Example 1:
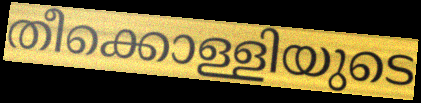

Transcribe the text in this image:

തീക്കൊള്ളിയുടെ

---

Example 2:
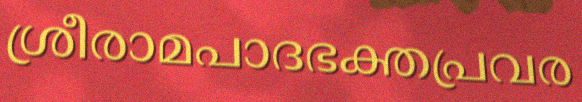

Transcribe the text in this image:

ശ്രീരാമപാദഭക്തപ്രവര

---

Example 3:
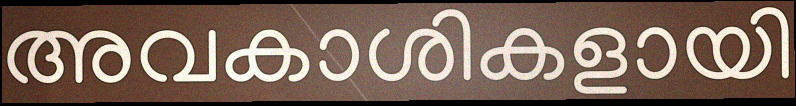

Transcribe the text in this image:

അവകാശികളായി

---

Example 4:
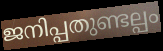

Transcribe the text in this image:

ജനിപ്പതുണ്ടല്പം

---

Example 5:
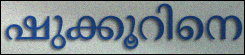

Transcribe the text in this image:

ഷുക്കൂറിനെ